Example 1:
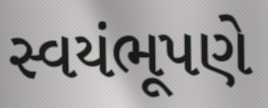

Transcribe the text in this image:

સ્વયંભૂપણે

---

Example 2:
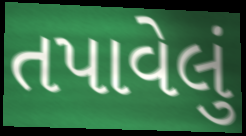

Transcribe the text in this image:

તપાવેલું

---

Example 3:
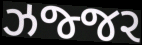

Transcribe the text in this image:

ઝજ્જર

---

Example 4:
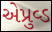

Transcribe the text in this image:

એપ્રુવ્ડ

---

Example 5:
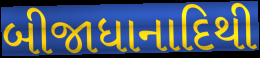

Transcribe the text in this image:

બીજાધાનાદિથી